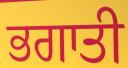
ਭਗਾਤੀ